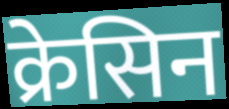
क्रेसिन